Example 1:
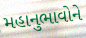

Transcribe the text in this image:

મહાનુભાવોને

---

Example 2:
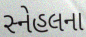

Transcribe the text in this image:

સ્નેહલના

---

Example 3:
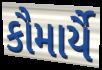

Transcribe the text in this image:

કૌમાર્યૈ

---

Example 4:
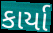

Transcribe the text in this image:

કાર્યા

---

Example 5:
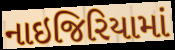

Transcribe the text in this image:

નાઇજિરિયામાં